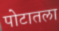
पोटातला